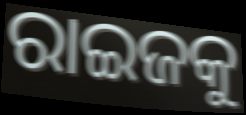
ରାଇଜକୁ